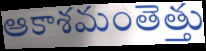
ఆకాశమంతెత్తు